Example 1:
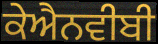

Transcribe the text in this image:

ਕੇਐਨਵੀਬੀ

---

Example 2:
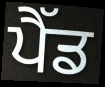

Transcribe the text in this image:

ਪੈੱਡ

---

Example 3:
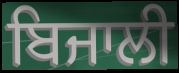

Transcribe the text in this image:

ਬਿਜਾਲੀ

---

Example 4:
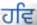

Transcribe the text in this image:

ਹਵਿ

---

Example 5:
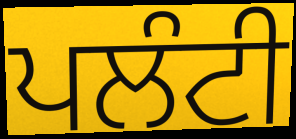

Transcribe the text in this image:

ਪਲੰਟੀ